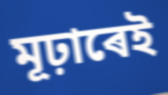
মূঢ়াৰেই